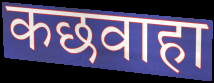
कछवाहा